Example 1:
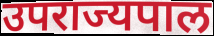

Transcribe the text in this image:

उपराज्यपाल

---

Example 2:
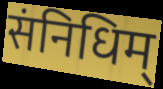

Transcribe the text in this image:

संनिधिम्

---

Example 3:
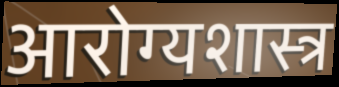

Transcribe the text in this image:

आरोग्यशास्त्र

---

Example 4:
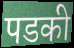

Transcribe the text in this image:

पडकी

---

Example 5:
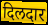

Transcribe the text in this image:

दिलदार